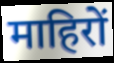
माहिरों